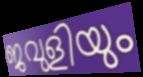
ജവുളിയും